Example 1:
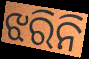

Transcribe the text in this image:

ଝରିନି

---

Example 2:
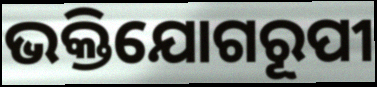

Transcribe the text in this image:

ଭକ୍ତିଯୋଗରୂପୀ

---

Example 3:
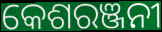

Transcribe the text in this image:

କେଶରଞ୍ଜନୀ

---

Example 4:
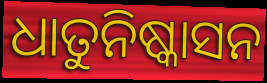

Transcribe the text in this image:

ଧାତୁନିଷ୍କାସନ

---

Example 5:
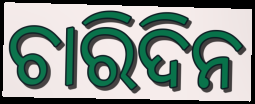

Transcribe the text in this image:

ଚାରିଦିନ